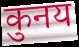
कुनय